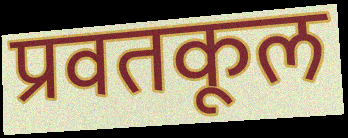
प्रवतकूल